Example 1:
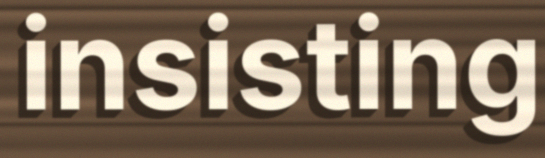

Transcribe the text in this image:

insisting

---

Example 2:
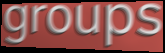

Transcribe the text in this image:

groups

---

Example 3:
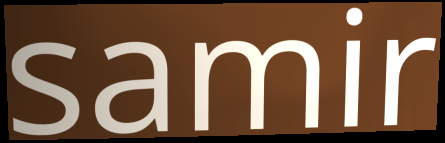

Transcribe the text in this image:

samir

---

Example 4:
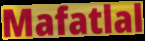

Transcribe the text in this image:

Mafatlal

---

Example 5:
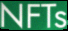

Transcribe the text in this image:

NFTs